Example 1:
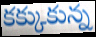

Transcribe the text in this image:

కక్కుకున్న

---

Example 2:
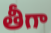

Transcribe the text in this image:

తీగా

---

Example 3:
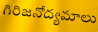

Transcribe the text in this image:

గిరిజనోద్యమాలు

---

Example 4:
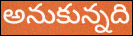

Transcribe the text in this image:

అనుకున్నది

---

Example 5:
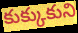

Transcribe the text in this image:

కుక్కుకుని